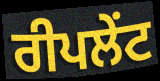
ਰੀਪਲੇਂਟ